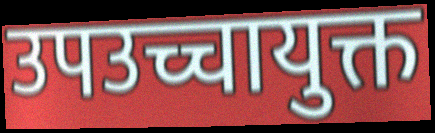
उपउच्चायुक्त